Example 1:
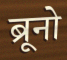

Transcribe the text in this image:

ब्रूनो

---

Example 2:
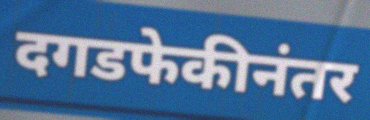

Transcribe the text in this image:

दगडफेकीनंतर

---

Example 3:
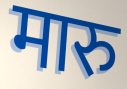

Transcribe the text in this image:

मारु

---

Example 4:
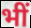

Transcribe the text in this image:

भीं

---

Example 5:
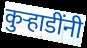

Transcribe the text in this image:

कुर्‍हाडींनी